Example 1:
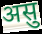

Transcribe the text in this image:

असु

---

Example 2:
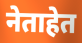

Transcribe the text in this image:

नेताहेत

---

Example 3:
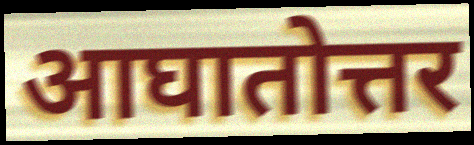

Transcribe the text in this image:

आघातोत्तर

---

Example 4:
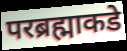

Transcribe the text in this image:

परब्रह्माकडे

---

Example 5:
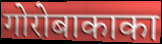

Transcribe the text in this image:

गोरोबाकाका